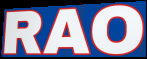
RAO